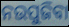
ନଉପୁଜିବା